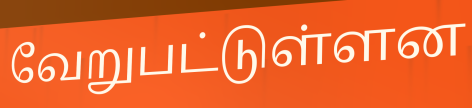
வேறுபட்டுள்ளன